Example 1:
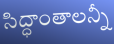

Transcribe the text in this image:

సిద్ధాంతాలన్నీ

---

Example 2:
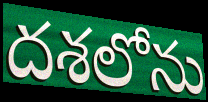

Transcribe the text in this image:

దశలోను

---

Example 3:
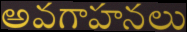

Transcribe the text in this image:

అవగాహనలు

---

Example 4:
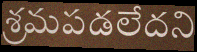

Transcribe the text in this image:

శ్రమపడలేదని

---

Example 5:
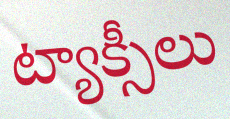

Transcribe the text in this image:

ట్యాక్సీలు